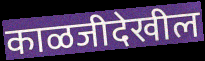
काळजीदेखील